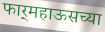
फार्महाऊसच्या